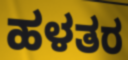
ಹಳತರ